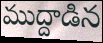
ముద్దాడిన